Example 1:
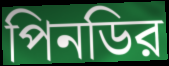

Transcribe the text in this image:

পিনডির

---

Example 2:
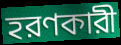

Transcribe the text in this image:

হরণকারী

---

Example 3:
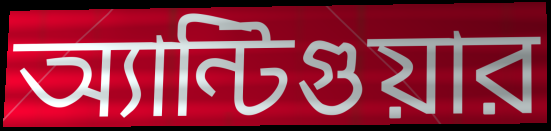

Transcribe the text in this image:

অ্যান্টিগুয়ার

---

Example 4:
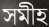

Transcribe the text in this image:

সমীহ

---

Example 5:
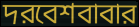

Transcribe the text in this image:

দরবেশবাবার